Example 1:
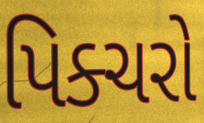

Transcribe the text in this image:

પિક્ચરો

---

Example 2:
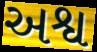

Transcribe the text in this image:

અશ્વ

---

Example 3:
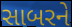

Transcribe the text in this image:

સાબરને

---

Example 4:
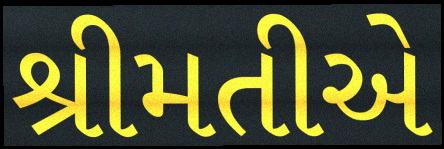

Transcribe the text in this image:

શ્રીમતીએ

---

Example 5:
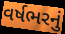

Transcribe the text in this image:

વર્ષભરનું